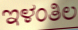
ಇಳಂತಿಲ